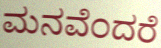
ಮನವೆಂದರೆ